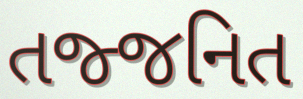
તજ્જનિત